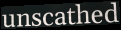
unscathed